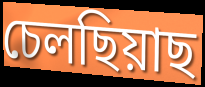
চেলছিয়াছ